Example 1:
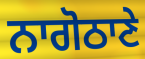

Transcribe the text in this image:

ਨਾਗੋਠਾਣੇ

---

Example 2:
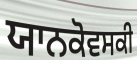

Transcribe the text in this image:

ਯਾਨਕੋਵਸਕੀ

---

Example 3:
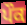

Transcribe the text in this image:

ਪੌਕ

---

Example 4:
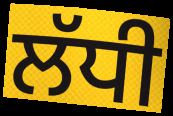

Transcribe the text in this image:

ਲੱਧੀ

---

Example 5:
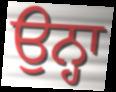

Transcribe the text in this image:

ਉਨ੍ਹਾ